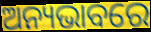
ଅନ୍ୟଭାବରେ